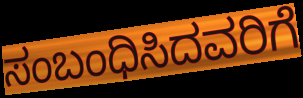
ಸಂಬಂಧಿಸಿದವರಿಗೆ